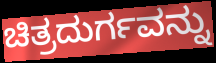
ಚಿತ್ರದುರ್ಗವನ್ನು